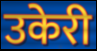
उकेरी